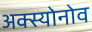
अक्स्योनोव